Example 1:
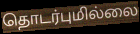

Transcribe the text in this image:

தொடர்புமில்லை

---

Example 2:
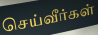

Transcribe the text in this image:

செய்வீர்கள்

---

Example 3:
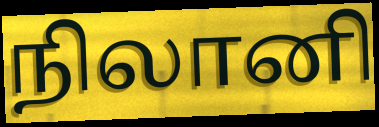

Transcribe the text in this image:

நிலானி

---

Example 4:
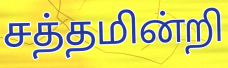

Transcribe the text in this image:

சத்தமின்றி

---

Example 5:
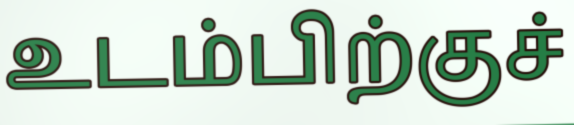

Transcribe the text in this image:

உடம்பிற்குச்